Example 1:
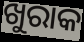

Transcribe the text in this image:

ଖୁରାକ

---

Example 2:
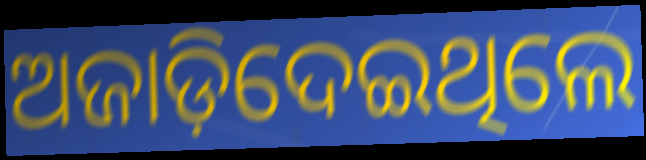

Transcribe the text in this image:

ଅଜାଡ଼ିଦେଇଥିଲେ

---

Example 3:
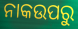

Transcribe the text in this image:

ନାକଉପରୁ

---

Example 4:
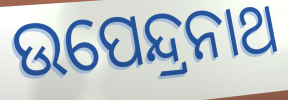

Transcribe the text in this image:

ଉପେନ୍ଦ୍ରନାଥ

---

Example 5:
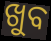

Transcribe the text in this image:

ଖୁବ